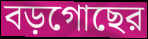
বড়গোছের